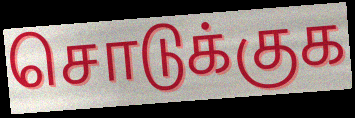
சொடுக்குக